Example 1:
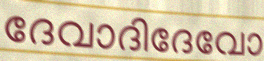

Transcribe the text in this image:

ദേവാദിദേവോ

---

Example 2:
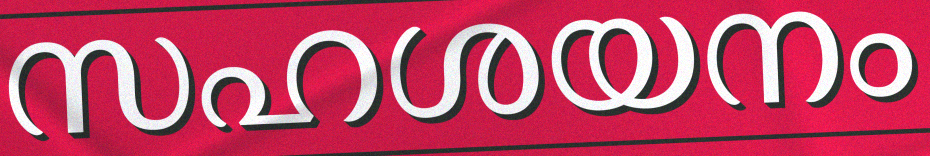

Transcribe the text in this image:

സഹശയനം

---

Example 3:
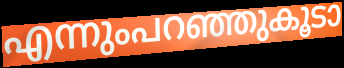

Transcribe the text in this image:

എന്നുംപറഞ്ഞുകൂടാ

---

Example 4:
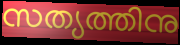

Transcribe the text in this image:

സത്യത്തിനു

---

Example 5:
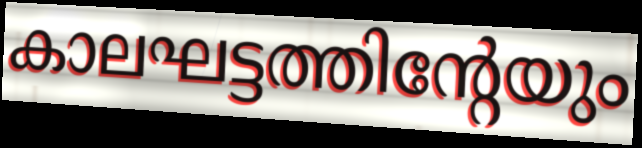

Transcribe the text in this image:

കാലഘട്ടത്തിന്റേയും